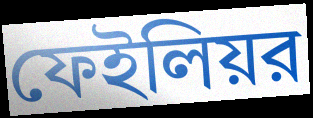
ফেইলিয়র